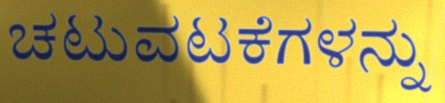
ಚಟುವಟಕೆಗಳನ್ನು